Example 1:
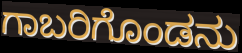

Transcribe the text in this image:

ಗಾಬರಿಗೊಂಡನು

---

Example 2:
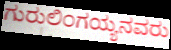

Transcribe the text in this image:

ಗುರುಲಿಂಗಯ್ಯನವರು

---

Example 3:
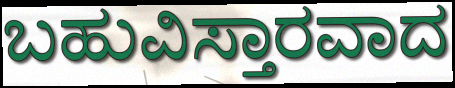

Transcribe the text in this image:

ಬಹುವಿಸ್ತಾರವಾದ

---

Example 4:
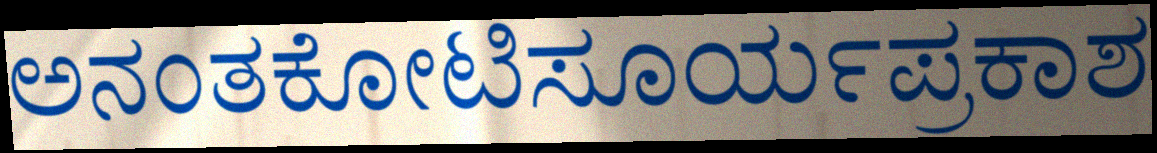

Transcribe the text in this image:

ಅನಂತಕೋಟಿಸೂರ್ಯಪ್ರಕಾಶ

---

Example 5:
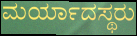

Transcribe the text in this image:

ಮರ್ಯಾದಸ್ಥರು